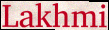
Lakhmi